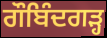
ਗੌਬਿੰਦਗੜ੍ਹ